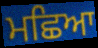
ਮਛਿਆ